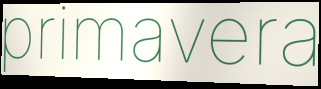
primavera